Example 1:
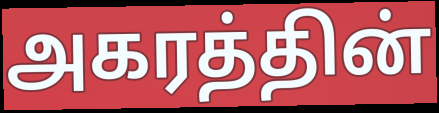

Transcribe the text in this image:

அகரத்தின்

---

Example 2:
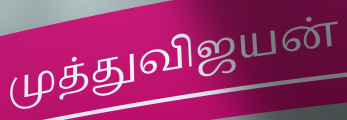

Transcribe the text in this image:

முத்துவிஜயன்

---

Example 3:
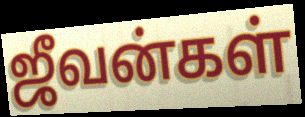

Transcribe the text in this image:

ஜீவன்கள்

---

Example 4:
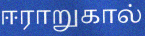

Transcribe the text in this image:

ஈராறுகால்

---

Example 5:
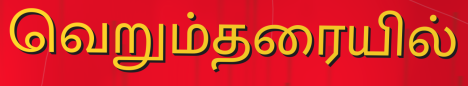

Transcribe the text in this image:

வெறும்தரையில்